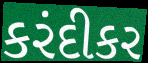
કરંદીકર